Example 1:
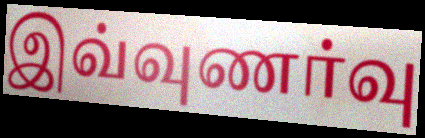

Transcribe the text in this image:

இவ்வுணர்வு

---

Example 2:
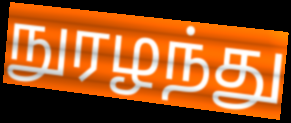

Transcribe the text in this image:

நுரழந்து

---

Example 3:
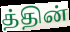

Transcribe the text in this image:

த்தின்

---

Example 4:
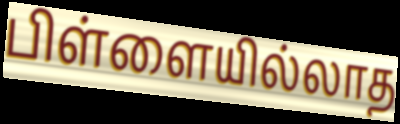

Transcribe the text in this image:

பிள்ளையில்லாத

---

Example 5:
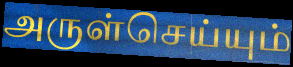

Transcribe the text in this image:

அருள்செய்யும்